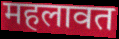
महलावत